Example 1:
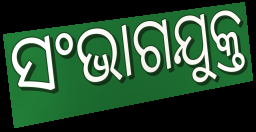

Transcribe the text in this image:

ସଂଭାଗଯୁକ୍ତ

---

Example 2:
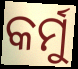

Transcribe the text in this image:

କର୍ମୁ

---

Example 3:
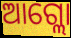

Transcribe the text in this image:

ଆଗ୍ଲୋ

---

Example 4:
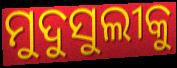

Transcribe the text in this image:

ମୁଦୁସୁଲୀକୁ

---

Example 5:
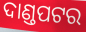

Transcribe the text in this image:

ଦାଣ୍ଡପଟର